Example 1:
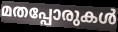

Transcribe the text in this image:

മതപ്പോരുകൾ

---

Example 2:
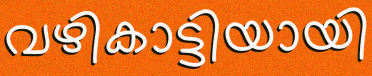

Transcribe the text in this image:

വഴികാട്ടിയായി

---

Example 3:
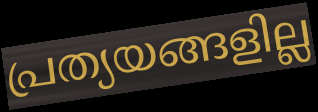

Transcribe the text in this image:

പ്രത്യയങ്ങളില്ല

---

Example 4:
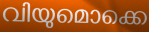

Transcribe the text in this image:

വിയുമൊക്കെ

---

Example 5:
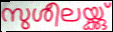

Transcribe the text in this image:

സുശീലയ്ക്കു്